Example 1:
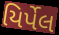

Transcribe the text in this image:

યિર્પેલ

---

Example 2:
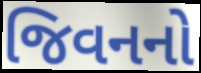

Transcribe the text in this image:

જિવનનો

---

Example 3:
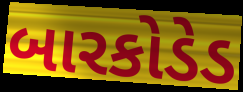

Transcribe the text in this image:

બારકોડેડ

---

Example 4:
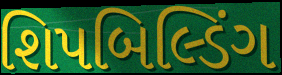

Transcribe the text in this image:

શિપબિલ્ડિંગ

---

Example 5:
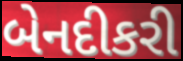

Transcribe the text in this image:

બેનદીકરી